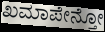
ಖಮಾಪೇನ್ತೋ